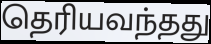
தெரியவந்தது